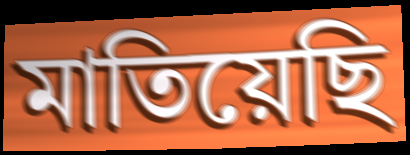
মাতিয়েছি